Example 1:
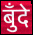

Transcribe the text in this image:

बुँदे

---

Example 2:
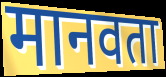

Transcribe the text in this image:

मानवता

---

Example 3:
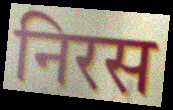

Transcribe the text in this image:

निरस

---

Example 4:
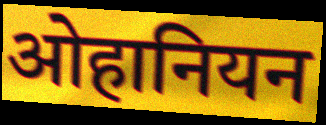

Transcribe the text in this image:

ओहानियन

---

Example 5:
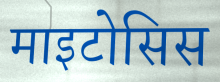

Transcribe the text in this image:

माइटोसिस